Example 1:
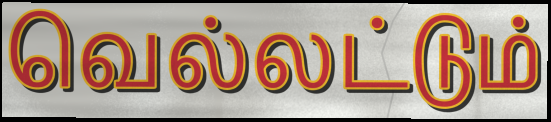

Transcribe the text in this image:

வெல்லட்டும்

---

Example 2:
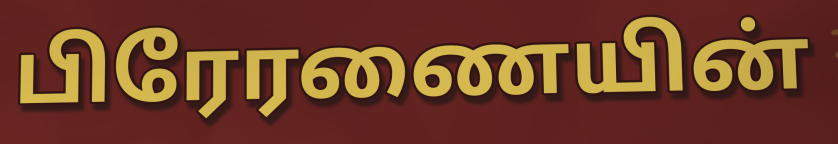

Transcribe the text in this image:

பிரேரணையின்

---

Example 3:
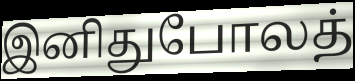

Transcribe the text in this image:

இனிதுபோலத்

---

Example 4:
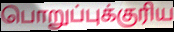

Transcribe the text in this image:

பொறுப்புக்குரிய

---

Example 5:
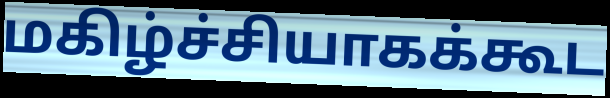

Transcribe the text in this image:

மகிழ்ச்சியாகக்கூட